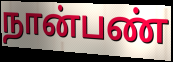
நான்பண்